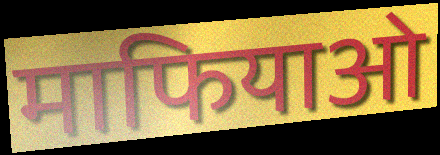
माफियाओ